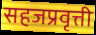
सहजप्रवृत्ती